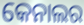
କେନାଲର